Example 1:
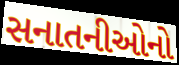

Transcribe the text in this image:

સનાતનીઓનો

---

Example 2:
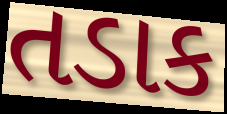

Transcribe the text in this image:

તડાક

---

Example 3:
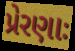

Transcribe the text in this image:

પ્રેરણાઃ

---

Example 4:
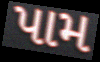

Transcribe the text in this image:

પામ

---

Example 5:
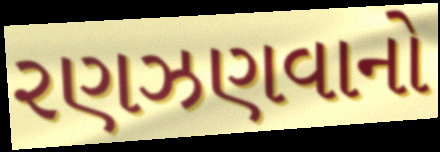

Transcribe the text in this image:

રણઝણવાનો